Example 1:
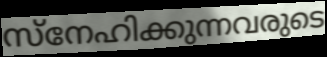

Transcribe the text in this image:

സ്നേഹിക്കുന്നവരുടെ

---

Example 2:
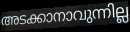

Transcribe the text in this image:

അടക്കാനാവുന്നില്ല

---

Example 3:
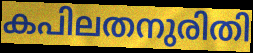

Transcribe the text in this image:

കപിലതനുരിതി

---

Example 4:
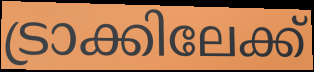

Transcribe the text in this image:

ട്രാക്കിലേക്ക്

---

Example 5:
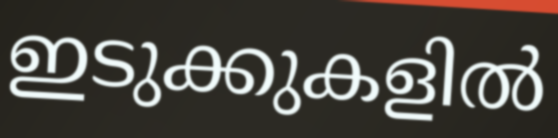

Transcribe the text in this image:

ഇടുക്കുകളിൽ